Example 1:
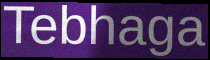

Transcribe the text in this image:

Tebhaga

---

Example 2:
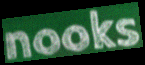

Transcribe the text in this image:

nooks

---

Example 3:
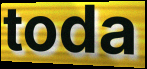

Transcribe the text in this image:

toda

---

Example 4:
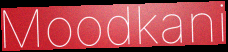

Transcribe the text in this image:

Moodkani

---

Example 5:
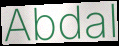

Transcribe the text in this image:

Abdal